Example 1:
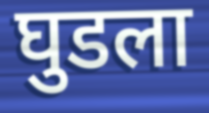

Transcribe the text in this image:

घुडला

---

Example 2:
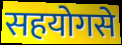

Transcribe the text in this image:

सहयोगसे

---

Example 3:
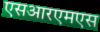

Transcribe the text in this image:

एसआरएमएस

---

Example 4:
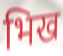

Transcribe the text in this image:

भिख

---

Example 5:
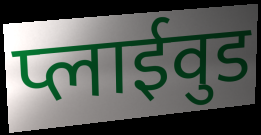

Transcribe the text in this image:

प्‍लाईवुड